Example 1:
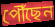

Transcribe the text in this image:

পৌঁছেন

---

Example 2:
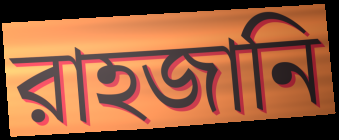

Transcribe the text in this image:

রাহজানি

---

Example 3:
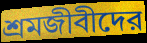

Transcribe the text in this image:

শ্রমজীবীদের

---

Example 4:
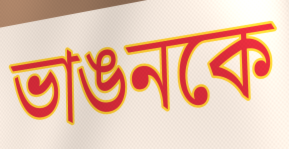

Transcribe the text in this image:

ভাঙনকে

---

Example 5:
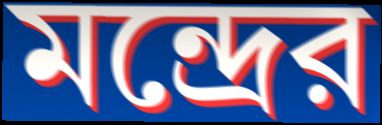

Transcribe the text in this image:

মন্দ্রের